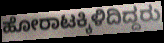
ಹೋರಾಟಕ್ಕಿಳಿದಿದ್ದರು